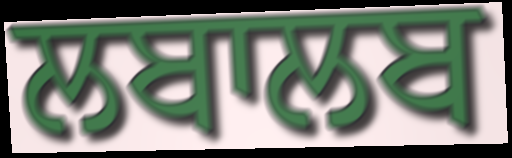
ਲਬਾਲਬ